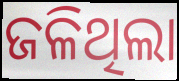
ଜଳିଥିଲା